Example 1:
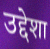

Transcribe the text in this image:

उद्देशा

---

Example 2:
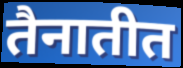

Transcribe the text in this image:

तैनातीत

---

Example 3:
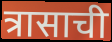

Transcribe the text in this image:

त्रासाची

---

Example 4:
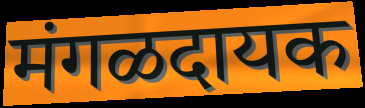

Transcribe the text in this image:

मंगळदायक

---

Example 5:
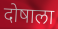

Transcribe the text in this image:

दोषाला